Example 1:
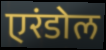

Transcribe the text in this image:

एरंडोल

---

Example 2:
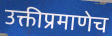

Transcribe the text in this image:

उक्तीप्रमाणेच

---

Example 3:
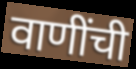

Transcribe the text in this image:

वाणींची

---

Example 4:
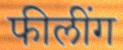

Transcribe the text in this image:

फीलींग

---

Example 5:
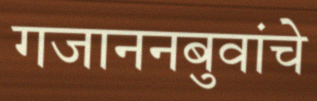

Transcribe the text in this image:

गजाननबुवांचे